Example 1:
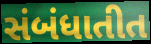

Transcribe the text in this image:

સંબંધાતીત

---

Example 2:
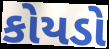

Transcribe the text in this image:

કોયડો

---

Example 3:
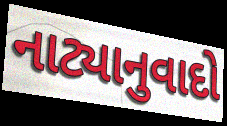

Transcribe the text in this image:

નાટ્યાનુવાદો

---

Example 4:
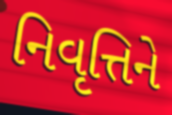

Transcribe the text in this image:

નિવૃત્તિને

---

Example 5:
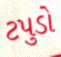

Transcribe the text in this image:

ટપુડો